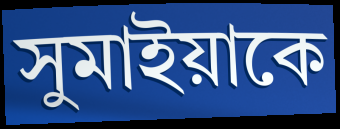
সুমাইয়াকে